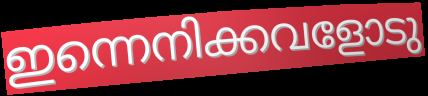
ഇന്നെനിക്കവളോടു